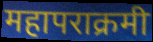
महापराक्रमी